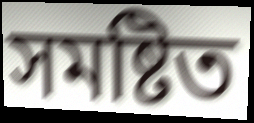
সমষ্টিত